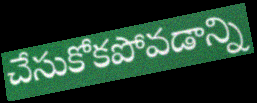
చేసుకోకపోవడాన్ని